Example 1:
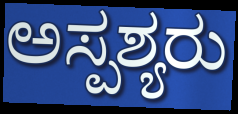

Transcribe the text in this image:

ಅಸ್ಪಶ್ಯರು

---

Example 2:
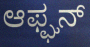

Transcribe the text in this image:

ಆಫ್ಘನ್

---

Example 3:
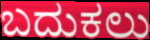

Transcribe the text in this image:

ಬದುಕಲು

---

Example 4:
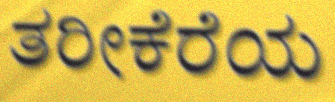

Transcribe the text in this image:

ತರೀಕೆರೆಯ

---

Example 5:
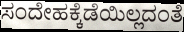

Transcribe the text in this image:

ಸಂದೇಹಕ್ಕೆಡೆಯಿಲ್ಲದಂತೆ